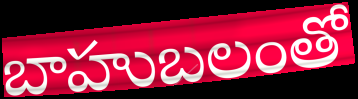
బాహుబలంతో